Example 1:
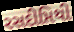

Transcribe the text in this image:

રસદીપ્તિથી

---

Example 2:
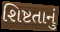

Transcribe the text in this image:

શિષ્ટતાનું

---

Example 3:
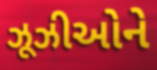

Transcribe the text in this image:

ઝૂઝીઓને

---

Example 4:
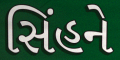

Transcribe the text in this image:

સિંહને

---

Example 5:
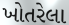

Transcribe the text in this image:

ખોતરેલા